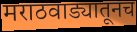
मराठवाड्यातूनच